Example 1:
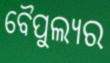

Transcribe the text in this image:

ବୈପୁଲ୍ୟର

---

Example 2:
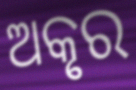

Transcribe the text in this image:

ଅକୃର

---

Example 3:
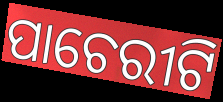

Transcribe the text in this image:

ପାଚେରୀଟି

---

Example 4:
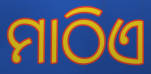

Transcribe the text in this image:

ମାଠିଏ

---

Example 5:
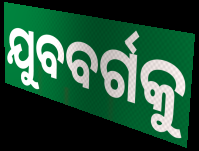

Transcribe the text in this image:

ଯୁବବର୍ଗକୁ